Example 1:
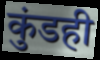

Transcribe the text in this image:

कुंडही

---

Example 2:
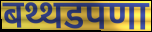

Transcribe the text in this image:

बथ्थडपणा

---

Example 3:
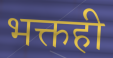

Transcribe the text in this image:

भक्तही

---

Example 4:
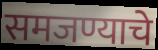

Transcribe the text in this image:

समजण्याचे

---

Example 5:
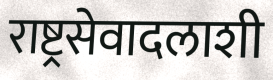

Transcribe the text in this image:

राष्ट्रसेवादलाशी